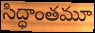
సిద్ధాంతమూ